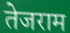
तेजराम